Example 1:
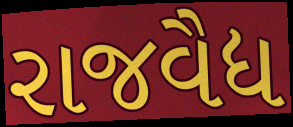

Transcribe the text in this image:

રાજવૈદ્ય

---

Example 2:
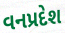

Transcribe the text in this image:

વનપ્રદેશ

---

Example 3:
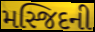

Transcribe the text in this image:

મસ્જિદની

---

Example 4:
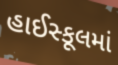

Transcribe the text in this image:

હાઈસ્કૂલમાં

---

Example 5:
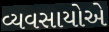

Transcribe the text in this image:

વ્યવસાયોએ